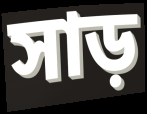
সাড়